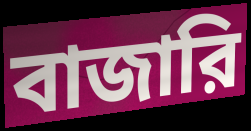
বাজারি